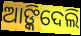
ଆଙ୍କିଦେଲି